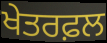
ਖੇਤਰਫ਼ਲ